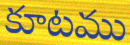
కూటము